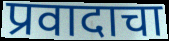
प्रवादाचा